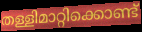
തള്ളിമാറ്റിക്കൊണ്ട്